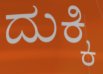
ದುಕ್ಕಿ